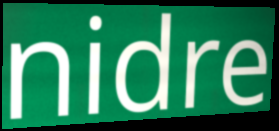
nidre